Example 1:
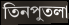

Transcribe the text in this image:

তিনপুতলা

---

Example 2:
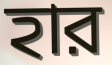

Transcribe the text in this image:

হার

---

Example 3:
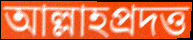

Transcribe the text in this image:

আল্লাহপ্রদত্ত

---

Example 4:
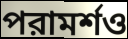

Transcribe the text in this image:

পরামর্শও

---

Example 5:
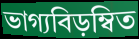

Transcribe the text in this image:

ভাগ্যবিড়ম্বিত